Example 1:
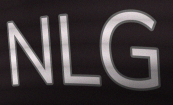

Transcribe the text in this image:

NLG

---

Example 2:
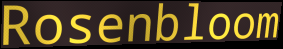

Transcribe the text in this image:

Rosenbloom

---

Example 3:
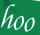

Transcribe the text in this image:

hoo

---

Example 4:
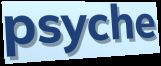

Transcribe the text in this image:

psyche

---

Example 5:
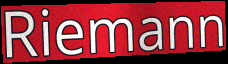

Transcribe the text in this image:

Riemann